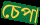
চেপা